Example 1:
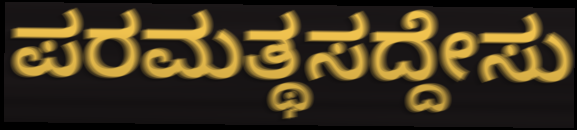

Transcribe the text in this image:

ಪರಮತ್ಥಸದ್ದೇಸು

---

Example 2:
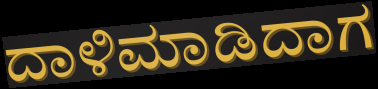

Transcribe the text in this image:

ದಾಳಿಮಾಡಿದಾಗ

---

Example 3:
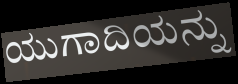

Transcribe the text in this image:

ಯುಗಾದಿಯನ್ನು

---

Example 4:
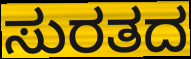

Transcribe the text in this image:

ಸುರತದ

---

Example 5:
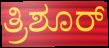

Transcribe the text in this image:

ತ್ರಿಶೂರ್